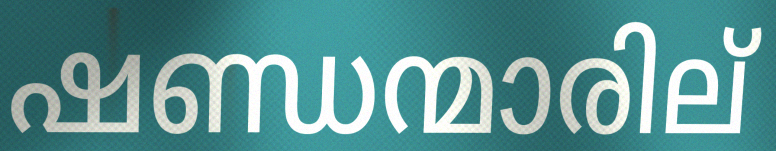
ഷണ്ഡന്മാരില്